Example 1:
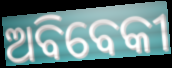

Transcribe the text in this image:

ଅବିବେକୀ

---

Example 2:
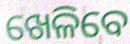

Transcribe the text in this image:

ଖେଳିବେ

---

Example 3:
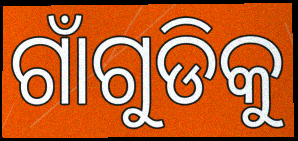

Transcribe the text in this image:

ଗାଁଗୁଡିକୁ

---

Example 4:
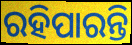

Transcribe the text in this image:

ରହିପାରନ୍ତି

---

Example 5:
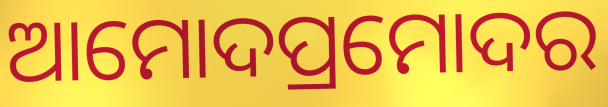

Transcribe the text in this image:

ଆମୋଦପ୍ରମୋଦର